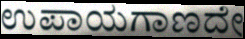
ಉಪಾಯಗಾಣದೇ